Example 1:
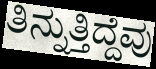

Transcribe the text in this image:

ತಿನ್ನುತ್ತಿದ್ದೆವು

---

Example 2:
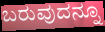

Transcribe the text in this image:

ಬರುವುದನ್ನೂ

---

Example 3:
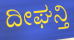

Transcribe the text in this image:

ದೀಘನ್ತಿ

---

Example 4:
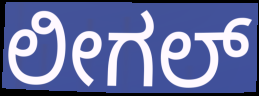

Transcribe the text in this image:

ಲೀಗಲ್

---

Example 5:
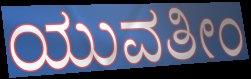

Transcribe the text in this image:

ಯುವತೀಂ